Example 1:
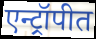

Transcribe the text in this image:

एन्ट्रॉपीत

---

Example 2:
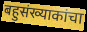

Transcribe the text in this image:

बहुसंख्याकांचा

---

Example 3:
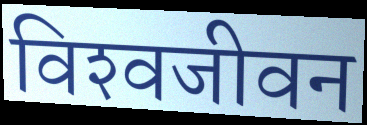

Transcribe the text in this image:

विश्वजीवन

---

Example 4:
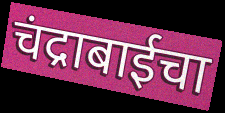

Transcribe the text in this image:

चंद्राबाईचा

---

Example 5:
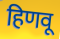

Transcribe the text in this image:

हिणवू